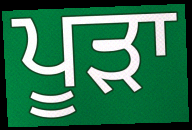
ਪੂੜਾ